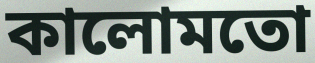
কালোমতো